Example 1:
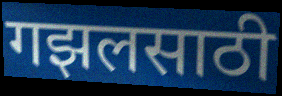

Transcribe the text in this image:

गझलसाठी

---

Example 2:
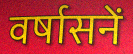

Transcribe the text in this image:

वर्षासनें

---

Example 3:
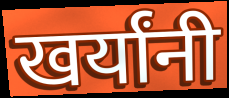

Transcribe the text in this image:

खर्यांनी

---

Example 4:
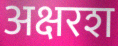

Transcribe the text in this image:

अक्षरश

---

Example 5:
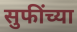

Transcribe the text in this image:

सुफींच्या